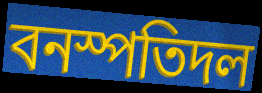
বনস্পতিদল